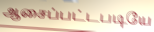
ஆசைப்பட்டபடியே